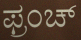
ಫ್ರಂಚ್